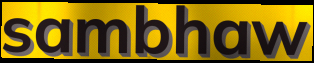
sambhaw